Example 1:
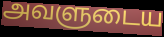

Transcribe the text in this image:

அவளுடைய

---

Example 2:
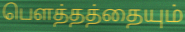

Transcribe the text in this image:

பெளத்தத்தையும்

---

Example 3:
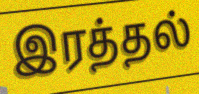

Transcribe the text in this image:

இரத்தல்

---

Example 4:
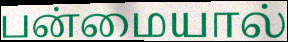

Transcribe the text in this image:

பன்மையால்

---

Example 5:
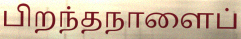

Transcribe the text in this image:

பிறந்தநாளைப்